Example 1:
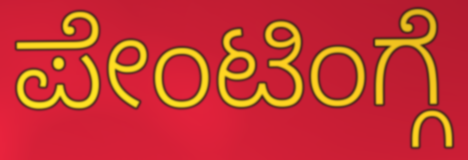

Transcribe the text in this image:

ಪೇಂಟಿಂಗ್ಗೆ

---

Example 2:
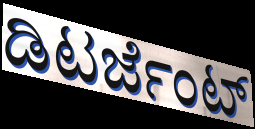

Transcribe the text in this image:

ಡಿಟರ್ಜೆಂಟ್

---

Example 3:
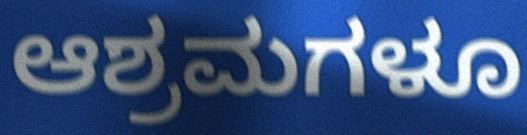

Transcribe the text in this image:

ಆಶ್ರಮಗಳೂ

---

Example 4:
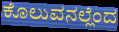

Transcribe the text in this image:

ಕೊಲುವನಲ್ಲೆಂದ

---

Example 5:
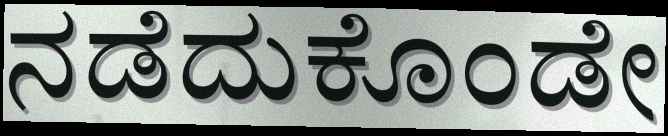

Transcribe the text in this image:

ನಡೆದುಕೊಂಡೇ